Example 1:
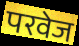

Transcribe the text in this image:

परवेज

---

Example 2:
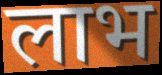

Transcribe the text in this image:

लाभ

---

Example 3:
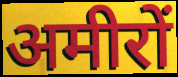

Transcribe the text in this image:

अमीरों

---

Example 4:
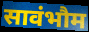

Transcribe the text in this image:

सावंभौम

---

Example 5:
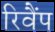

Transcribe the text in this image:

रिवैंप